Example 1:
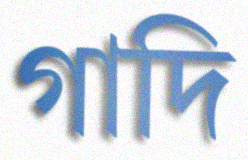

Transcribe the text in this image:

গাদি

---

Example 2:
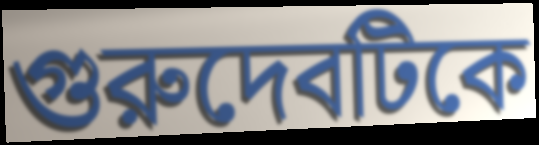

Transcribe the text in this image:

গুরুদেবটিকে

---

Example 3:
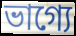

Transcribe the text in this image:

ভাগ্যে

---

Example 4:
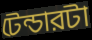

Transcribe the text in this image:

টেন্ডারটা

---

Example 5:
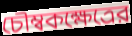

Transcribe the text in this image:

চৌম্বকক্ষেত্রের